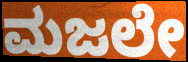
ಮಜಲೇ